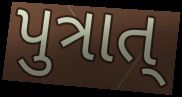
પુત્રાત્